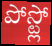
పోస్ట్లో